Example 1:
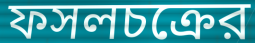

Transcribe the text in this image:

ফসলচক্রের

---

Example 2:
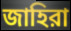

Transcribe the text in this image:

জাহিরা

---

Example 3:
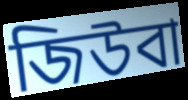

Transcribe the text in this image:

জিউবা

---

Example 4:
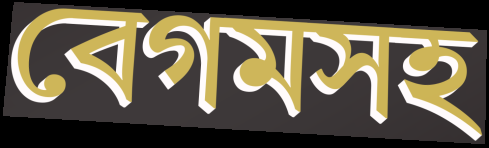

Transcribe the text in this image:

বেগমসহ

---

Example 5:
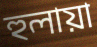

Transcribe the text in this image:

হুলায়া